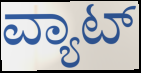
ವ್ಯಾಟ್